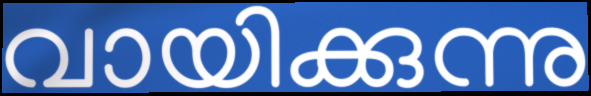
വായിക്കുന്നു